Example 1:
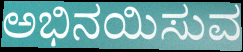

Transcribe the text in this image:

ಅಭಿನಯಿಸುವ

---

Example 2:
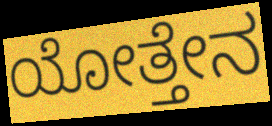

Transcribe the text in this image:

ಯೋತ್ತೇನ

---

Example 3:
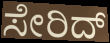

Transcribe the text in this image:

ಸೇರಿದ್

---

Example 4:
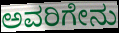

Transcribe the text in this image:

ಅವರಿಗೇನು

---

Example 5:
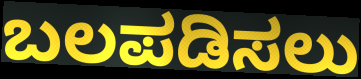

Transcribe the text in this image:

ಬಲಪಡಿಸಲು